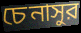
চেনাসুর